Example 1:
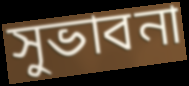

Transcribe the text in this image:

সুভাবনা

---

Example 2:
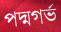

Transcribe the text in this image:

পদ্মগর্ভ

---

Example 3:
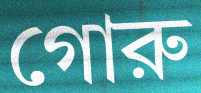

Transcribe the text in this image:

গোরু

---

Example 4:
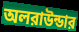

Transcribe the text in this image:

অলরাউন্ডার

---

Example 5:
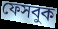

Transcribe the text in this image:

ফেসবুক